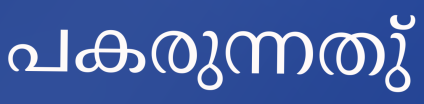
പകരുന്നതു്